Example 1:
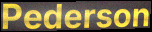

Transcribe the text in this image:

Pederson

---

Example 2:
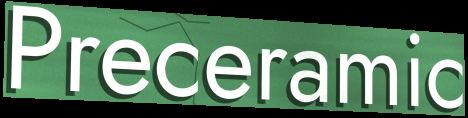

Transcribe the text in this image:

Preceramic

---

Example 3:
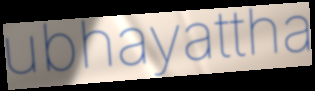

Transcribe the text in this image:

ubhayattha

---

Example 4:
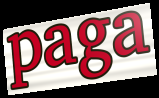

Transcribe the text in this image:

paga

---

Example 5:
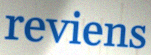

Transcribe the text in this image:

reviens